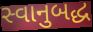
સ્વાનુબદ્ધ